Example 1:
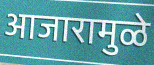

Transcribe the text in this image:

आजारामुळे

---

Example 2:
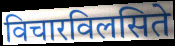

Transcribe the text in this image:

विचारविलसिते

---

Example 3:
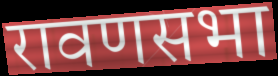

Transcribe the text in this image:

रावणसभा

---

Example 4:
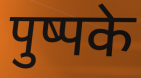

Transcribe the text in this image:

पुष्पके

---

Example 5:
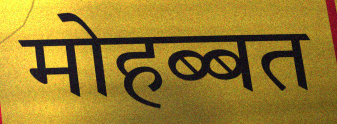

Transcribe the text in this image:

मोहब्बत